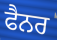
ਫੈਨਰ